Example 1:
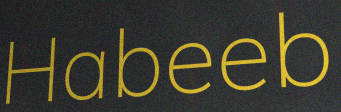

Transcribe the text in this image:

Habeeb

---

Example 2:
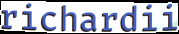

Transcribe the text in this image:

richardii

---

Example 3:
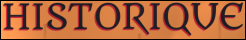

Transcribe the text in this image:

HISTORIQUE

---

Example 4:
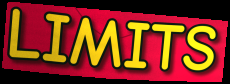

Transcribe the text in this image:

LIMITS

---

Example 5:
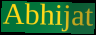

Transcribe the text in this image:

Abhijat